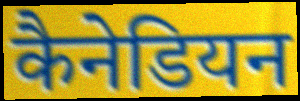
कैनेडियन